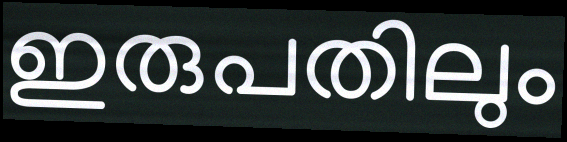
ഇരുപതിലും